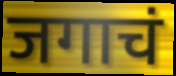
जगाचं